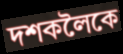
দশকলৈকে